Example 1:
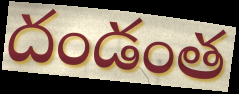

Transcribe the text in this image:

దండంత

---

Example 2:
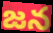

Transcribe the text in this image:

జన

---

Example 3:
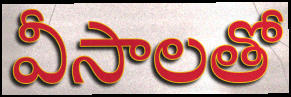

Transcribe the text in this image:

వీసాలతో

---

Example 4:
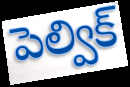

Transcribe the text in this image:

పెల్విక్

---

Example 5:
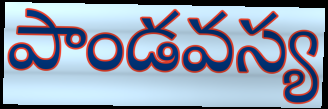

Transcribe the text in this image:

పాండవస్య